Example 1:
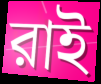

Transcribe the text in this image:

রাই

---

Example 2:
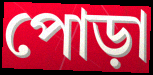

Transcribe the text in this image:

পোড়া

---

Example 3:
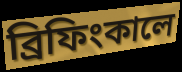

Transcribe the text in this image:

ব্রিফিংকালে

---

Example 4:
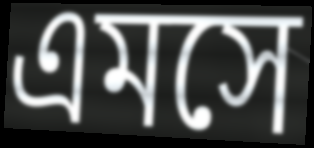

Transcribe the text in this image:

এমসে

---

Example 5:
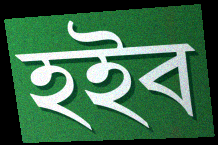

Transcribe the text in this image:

হইব